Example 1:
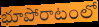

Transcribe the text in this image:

భూపోరాటంలో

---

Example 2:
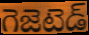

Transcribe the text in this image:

గెజెటెడ్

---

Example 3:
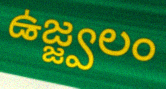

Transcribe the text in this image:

ఉజ్జ్వలం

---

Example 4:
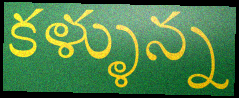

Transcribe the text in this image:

కళ్ళున్న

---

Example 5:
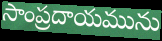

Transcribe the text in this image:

సాంప్రదాయమును